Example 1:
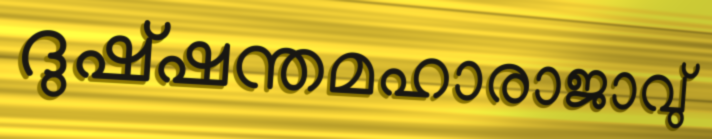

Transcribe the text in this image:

ദുഷ്ഷന്തമഹാരാജാവു്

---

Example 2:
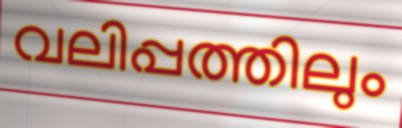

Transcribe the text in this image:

വലിപ്പത്തിലും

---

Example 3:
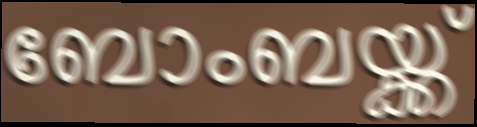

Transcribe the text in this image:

ബോംബയ്ക്ക്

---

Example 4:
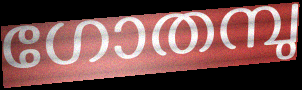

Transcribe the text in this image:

ഗോതമ്പു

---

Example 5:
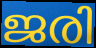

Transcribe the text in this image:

ജരി